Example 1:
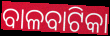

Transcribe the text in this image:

ବାଳବାଟିକା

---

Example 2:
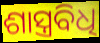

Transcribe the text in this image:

ଶାସ୍ତ୍ରବିଧି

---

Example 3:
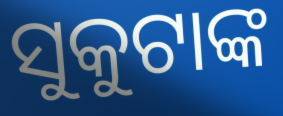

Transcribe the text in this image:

ସୁକୁଟାଙ୍କ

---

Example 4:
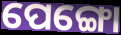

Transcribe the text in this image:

ପେଙ୍ଗୋ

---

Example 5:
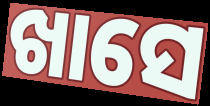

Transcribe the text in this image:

ଖାସେ